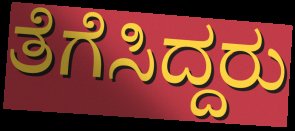
ತೆಗೆಸಿದ್ದರು